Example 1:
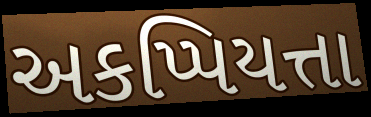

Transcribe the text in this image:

અકપ્પિયત્તા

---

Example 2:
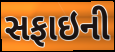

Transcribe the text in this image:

સફાઇની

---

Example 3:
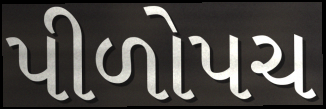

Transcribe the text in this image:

પીળોપચ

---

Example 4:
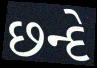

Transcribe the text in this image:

છન્દે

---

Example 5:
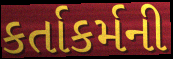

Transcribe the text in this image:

કર્તાકર્મની